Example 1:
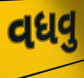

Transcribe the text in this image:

વધવુ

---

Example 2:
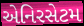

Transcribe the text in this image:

એનિરસેટમ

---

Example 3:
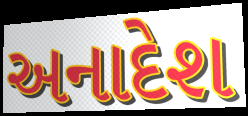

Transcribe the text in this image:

અનાદેશ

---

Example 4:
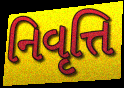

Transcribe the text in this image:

નિવૃત્તિ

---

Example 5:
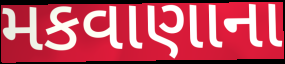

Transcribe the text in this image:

મકવાણાના